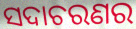
ସଦାଚରଣର